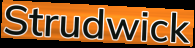
Strudwick